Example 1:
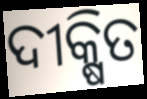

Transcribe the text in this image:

ଦୀକ୍ଷିତ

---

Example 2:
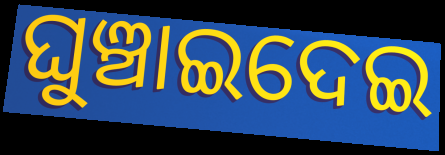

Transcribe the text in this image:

ଘୁଞ୍ଚାଇଦେଇ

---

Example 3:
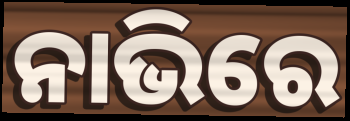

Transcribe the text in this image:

ନାଭିରେ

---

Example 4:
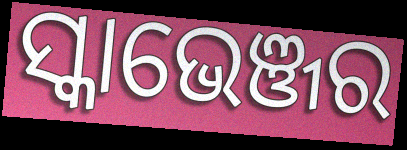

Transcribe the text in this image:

ସ୍କାଭେଞ୍ଜର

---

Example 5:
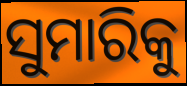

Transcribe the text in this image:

ସୁମାରିକୁ